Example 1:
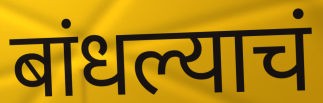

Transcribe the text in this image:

बांधल्याचं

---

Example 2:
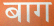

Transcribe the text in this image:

बाग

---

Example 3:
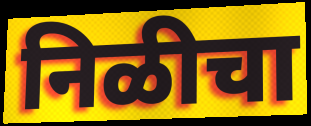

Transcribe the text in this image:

निळीचा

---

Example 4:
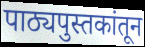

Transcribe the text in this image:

पाठ्यपुस्तकांतून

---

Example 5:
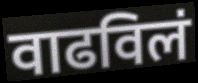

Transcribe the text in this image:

वाढविलं